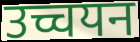
उच्चयन